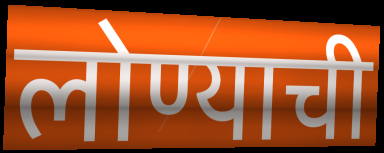
लोण्याची